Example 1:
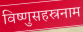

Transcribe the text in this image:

विष्णुसहस्रनाम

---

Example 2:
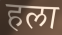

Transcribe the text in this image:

हला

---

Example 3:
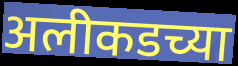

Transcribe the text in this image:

अलीकडच्या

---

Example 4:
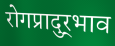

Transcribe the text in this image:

रोगप्रादुर्भाव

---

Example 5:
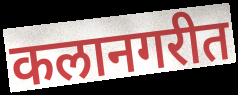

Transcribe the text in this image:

कलानगरीत